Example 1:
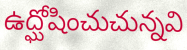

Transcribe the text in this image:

ఉద్ఘోషించుచున్నవి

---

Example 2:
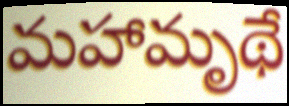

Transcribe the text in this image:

మహామృథే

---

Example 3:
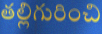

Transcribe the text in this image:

తల్లిగురించి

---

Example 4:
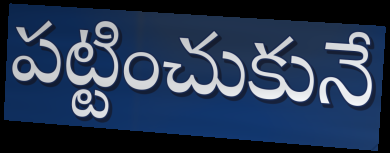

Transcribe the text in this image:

పట్టించుకునే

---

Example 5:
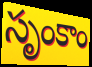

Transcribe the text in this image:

సృంకాం